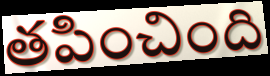
తపించింది